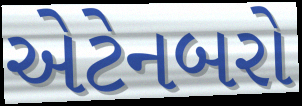
એટેનબરો